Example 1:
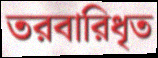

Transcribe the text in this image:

তরবারিধৃত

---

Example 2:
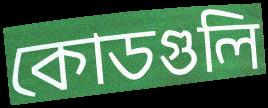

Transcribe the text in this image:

কোডগুলি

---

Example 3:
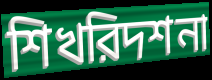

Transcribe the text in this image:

শিখরিদশনা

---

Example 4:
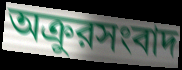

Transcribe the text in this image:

অক্রুরসংবাদ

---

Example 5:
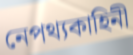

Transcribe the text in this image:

নেপথ্যকাহিনী